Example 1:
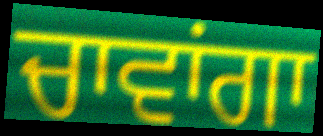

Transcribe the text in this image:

ਚਾਵਾਂਗਾ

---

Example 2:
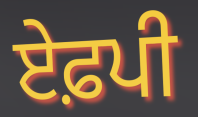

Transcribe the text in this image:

ਏਫ਼ਪੀ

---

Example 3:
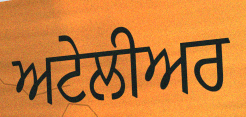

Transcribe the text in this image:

ਅਟੇਲੀਅਰ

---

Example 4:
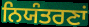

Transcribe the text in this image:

ਨਿਯੰਤਰਣਾਂ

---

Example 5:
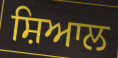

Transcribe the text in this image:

ਸ਼ਿਆਲ